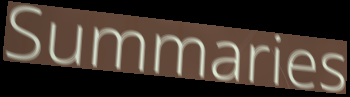
Summaries